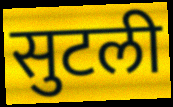
सुटली